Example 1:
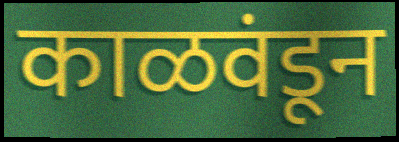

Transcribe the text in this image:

काळवंडून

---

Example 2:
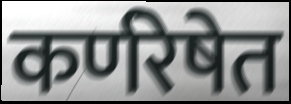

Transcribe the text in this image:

कर्णरेषेत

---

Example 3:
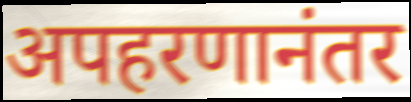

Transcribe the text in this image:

अपहरणानंतर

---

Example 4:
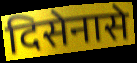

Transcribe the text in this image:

दिसेनासे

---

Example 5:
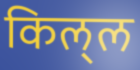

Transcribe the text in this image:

किल्ल